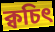
ক্বচিৎ